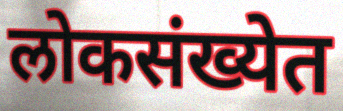
लोकसंख्येत